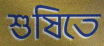
শুষিতে